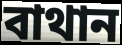
বাথান